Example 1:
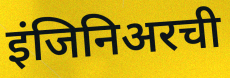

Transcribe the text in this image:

इंजिनिअरची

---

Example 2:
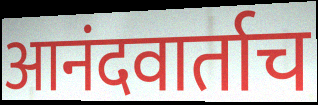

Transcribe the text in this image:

आनंदवार्ताच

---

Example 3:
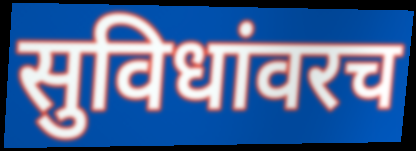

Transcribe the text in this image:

सुविधांवरच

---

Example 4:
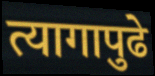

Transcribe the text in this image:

त्यागापुढे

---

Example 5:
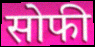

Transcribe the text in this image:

सोफी